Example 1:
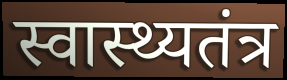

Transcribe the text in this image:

स्वास्थ्यतंत्र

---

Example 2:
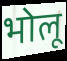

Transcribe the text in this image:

भोलू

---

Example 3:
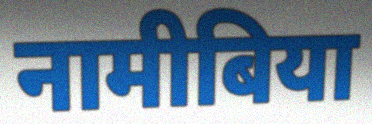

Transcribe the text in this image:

नामीबिया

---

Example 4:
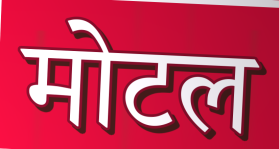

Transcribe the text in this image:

मोटल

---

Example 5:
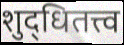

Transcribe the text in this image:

शुद्धितत्त्व